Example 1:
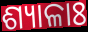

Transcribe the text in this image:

ଶ୍ୟାଳାଃ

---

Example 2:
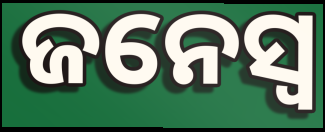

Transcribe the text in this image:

ଜନେସ୍ୱ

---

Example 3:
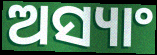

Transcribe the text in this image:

ଅସ୍ୟାଂ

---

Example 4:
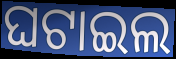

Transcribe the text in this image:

ଘଟାଇଲ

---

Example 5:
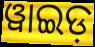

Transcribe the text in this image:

ୱାଇଡ଼